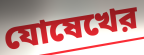
যোষেখের